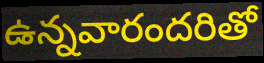
ఉన్నవారందరితో